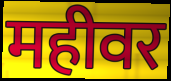
महीवर